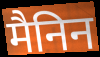
मैनिन